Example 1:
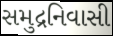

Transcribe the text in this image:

સમુદ્રનિવાસી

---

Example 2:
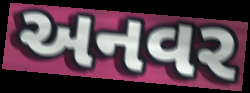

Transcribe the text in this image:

અનવર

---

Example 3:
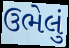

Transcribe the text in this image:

ઉભેલું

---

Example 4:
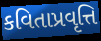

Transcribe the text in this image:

કવિતાપ્રવૃત્તિ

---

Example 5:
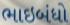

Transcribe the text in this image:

ભાઇબંધો